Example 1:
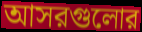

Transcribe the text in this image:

আসরগুলোর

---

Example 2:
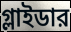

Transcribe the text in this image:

গ্লাইডার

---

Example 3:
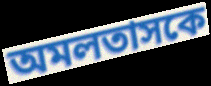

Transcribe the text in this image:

অমলতাসকে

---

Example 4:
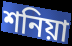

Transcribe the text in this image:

শনিয়া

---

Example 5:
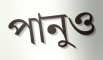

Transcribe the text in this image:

পানুও